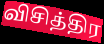
விசித்திர